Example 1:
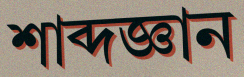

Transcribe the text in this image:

শাব্দজ্ঞান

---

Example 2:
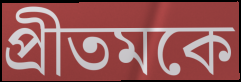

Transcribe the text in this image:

প্রীতমকে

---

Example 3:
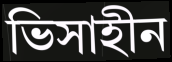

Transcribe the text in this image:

ভিসাহীন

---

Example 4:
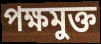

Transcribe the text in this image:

পক্ষমুক্ত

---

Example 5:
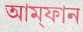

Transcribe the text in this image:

আম্‌ফান